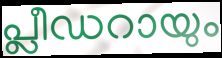
പ്ലീഡറായും